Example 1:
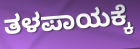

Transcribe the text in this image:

ತಳಪಾಯಕ್ಕೆ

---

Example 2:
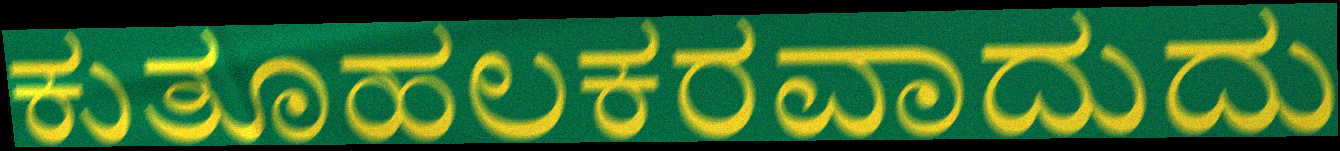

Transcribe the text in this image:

ಕುತೂಹಲಕರವಾದುದು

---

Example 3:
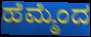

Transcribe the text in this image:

ಹೆಮ್ಮೆಂದ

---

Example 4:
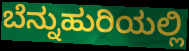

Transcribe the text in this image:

ಬೆನ್ನುಹುರಿಯಲ್ಲಿ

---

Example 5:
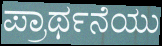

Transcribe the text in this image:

ಪ್ರಾರ್ಥನೆಯು